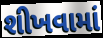
શીખવામાં